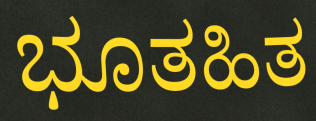
ಭೂತಹಿತ